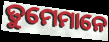
ତୁମେମାନେ